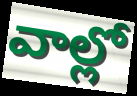
వాల్లో